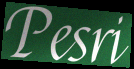
Pesri